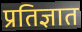
प्रतिज्ञात